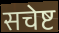
सचेष्ट